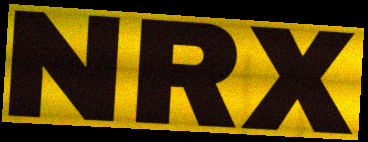
NRX